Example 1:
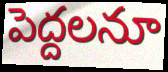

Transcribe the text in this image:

పెద్దలనూ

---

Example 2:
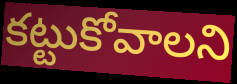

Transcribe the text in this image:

కట్టుకోవాలని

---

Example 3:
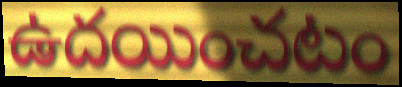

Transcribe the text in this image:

ఉదయించటం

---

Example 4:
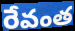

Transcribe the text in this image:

రేవంత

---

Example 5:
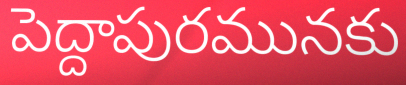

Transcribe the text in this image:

పెద్దాపురమునకు